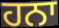
ਹਨਾ